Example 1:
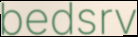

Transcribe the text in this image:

bedsrv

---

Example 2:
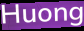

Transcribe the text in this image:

Huong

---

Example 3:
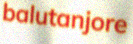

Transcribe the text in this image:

balutanjore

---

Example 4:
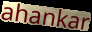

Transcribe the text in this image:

ahankar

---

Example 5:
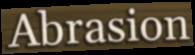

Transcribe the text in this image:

Abrasion